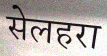
सेलहरा